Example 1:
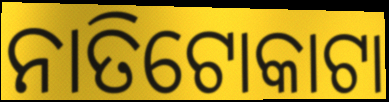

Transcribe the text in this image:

ନାତିଟୋକାଟା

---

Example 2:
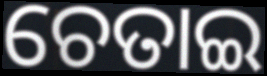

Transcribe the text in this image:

ଚେତାଇ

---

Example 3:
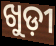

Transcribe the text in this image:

ଖୁଡ଼ୀ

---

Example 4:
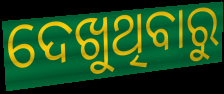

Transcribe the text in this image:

ଦେଖୁଥିବାରୁ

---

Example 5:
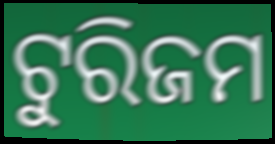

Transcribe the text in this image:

ଟୁରିଜମ